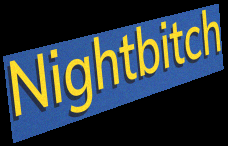
Nightbitch